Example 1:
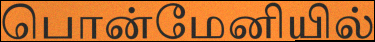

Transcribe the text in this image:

பொன்மேனியில்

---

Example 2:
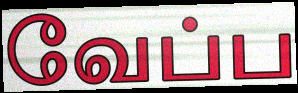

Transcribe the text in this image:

வேப்ப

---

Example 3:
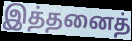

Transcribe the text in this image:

இத்தனைத்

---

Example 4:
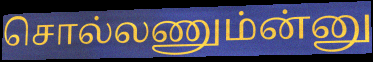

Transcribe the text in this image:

சொல்லணும்ன்னு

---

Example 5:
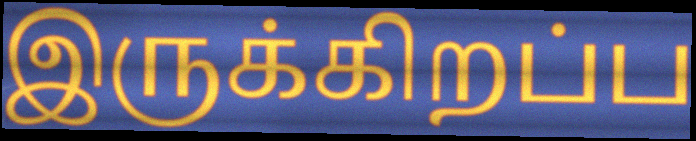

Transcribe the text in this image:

இருக்கிறப்ப